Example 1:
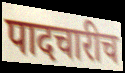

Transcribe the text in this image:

पादचारीच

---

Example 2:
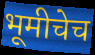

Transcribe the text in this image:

भूमीचेच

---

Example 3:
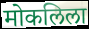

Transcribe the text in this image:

मोकलिला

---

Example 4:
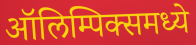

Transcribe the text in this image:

ऑलिम्पिक्समध्ये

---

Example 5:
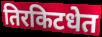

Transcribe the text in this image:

तिरकिटधेत